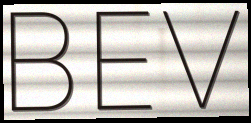
BEV